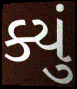
ક્યું